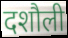
दशौली